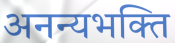
अनन्यभक्ति